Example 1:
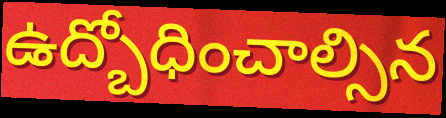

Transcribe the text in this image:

ఉద్బోధించాల్సిన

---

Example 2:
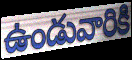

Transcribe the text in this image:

ఉండువారికి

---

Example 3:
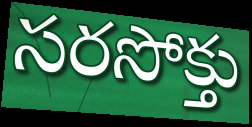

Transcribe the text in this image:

సరసోక్తు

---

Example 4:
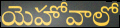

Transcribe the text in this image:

యెహోవాలో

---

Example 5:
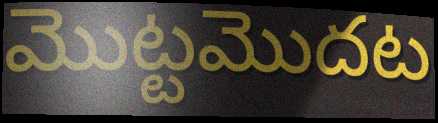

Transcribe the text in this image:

మొట్టమొదట